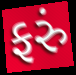
ફરું